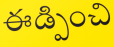
ఈడ్పించి